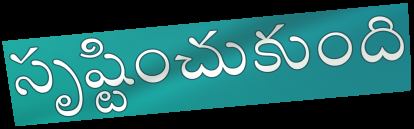
సృష్టించుకుంది